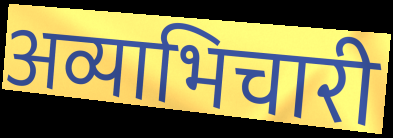
अव्याभिचारी